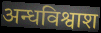
अन्धविश्वाश